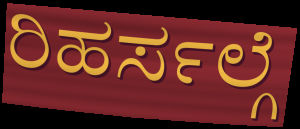
ರಿಹರ್ಸಲ್ಗೆ